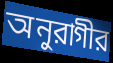
অনুরাগীর